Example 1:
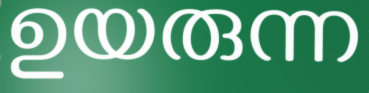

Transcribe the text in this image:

ഉയരുന്ന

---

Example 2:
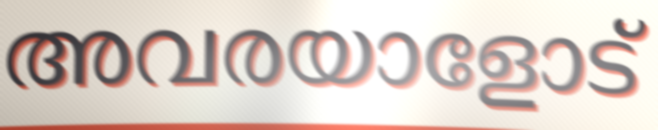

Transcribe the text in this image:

അവരയാളോട്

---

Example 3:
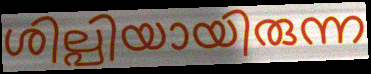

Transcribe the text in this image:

ശില്പിയായിരുന്ന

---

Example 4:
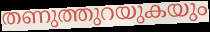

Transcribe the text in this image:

തണുത്തുറയുകയും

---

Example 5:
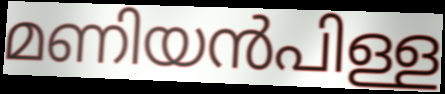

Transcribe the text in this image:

മണിയൻപിള്ള